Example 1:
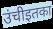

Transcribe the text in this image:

उंचीइतका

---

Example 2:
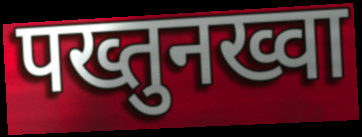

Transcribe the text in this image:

पख्तुनख्वा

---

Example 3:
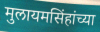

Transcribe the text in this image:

मुलायमसिंहांच्या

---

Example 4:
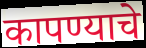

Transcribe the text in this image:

कापण्याचे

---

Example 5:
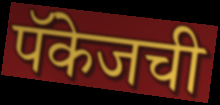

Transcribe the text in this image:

पॅकेजची